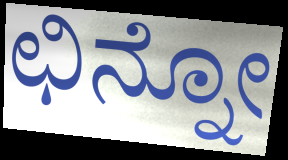
ಛಿನ್ನೋ